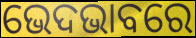
ଭେଦଭାବରେ